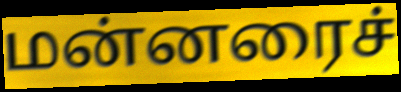
மன்னரைச்